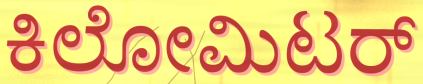
ಕಿಲೋಮಿಟರ್